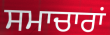
ਸਮਾਚਾਰਾਂ